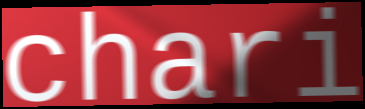
chari